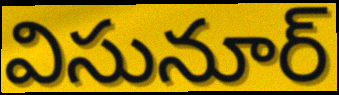
విసునూర్